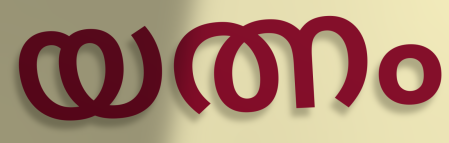
യത്നം